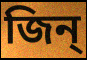
জিন্